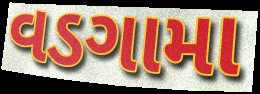
વડગામા